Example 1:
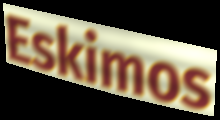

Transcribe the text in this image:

Eskimos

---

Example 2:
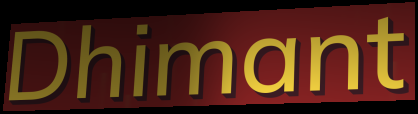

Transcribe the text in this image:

Dhimant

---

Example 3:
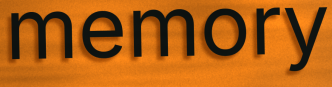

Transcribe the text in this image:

memory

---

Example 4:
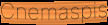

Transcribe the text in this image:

Cnemaspis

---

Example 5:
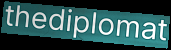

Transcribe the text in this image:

thediplomat